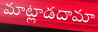
మాట్లాడదామా